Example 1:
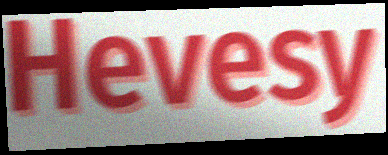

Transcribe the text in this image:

Hevesy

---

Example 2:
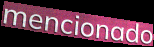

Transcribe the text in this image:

mencionado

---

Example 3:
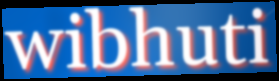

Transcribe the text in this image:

wibhuti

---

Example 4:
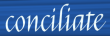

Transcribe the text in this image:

conciliate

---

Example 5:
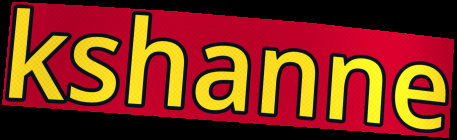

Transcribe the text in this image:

kshanne